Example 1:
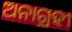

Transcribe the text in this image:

ଅନାଗ୍ରହୀ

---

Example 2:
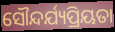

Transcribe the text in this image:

ସୌନ୍ଦର୍ଯ୍ୟପ୍ରିୟତା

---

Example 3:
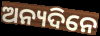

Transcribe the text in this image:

ଅନ୍ୟଦିନେ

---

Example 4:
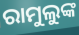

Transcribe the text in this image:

ରାମୁଲୁଙ୍କ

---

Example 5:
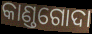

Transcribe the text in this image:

କାଣ୍ଡଗୋଦା